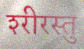
श्रीरस्तु